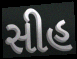
સીહ